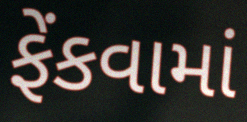
ફેંકવામાં